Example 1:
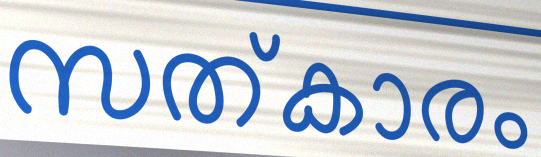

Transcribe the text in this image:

സത്കാരം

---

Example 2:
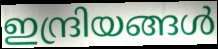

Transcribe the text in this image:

ഇന്ദ്രിയങ്ങൾ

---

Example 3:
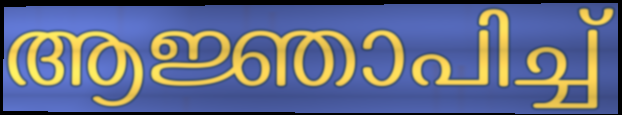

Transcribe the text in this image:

ആജ്ഞാപിച്ച്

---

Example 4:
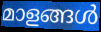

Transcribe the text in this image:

മാളങ്ങൾ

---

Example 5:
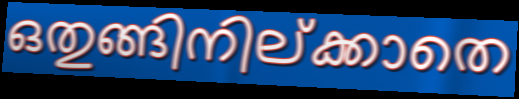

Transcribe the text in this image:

ഒതുങ്ങിനില്ക്കാതെ